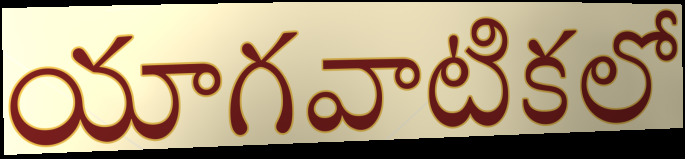
యాగవాటికలో